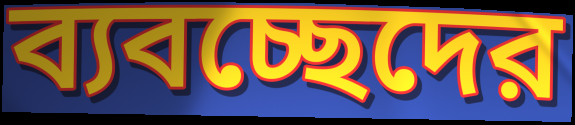
ব্যবচ্ছেদের